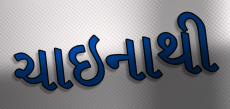
ચાઇનાથી